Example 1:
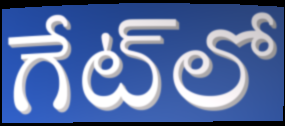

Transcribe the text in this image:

గేట్‌లో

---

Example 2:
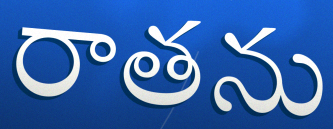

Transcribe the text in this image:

రాతను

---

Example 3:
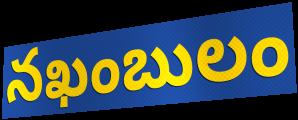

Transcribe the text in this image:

నఖంబులం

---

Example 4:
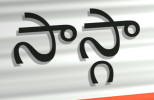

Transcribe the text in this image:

సాస్గా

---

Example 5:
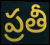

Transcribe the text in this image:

ప్రతీ